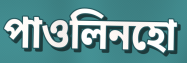
পাওলিনহো